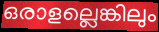
ഒരാളല്ലെങ്കിലും